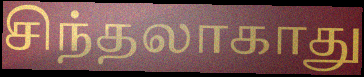
சிந்தலாகாது